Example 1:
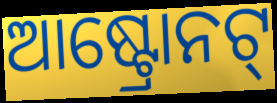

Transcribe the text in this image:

ଆଷ୍ଟ୍ରୋନଟ୍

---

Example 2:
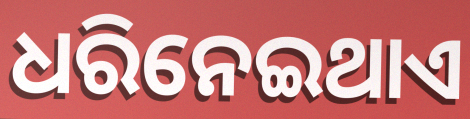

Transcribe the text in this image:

ଧରିନେଇଥାଏ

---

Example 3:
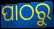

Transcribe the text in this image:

ପାଠରୁ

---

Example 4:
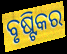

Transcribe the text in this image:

ବୃଷ୍ଟିକର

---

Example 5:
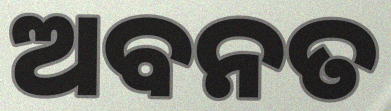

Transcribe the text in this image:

ଅବନତ